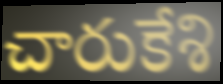
చారుకేశి